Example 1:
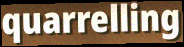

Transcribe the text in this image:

quarrelling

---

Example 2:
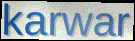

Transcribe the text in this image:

karwar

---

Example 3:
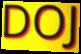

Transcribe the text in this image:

DOJ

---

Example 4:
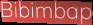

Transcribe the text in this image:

Bibimbap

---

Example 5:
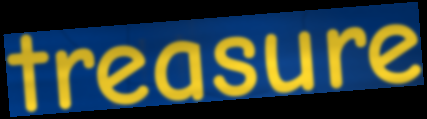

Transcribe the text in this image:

treasure